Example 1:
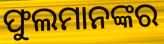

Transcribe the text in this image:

ଫୁଲମାନଙ୍କର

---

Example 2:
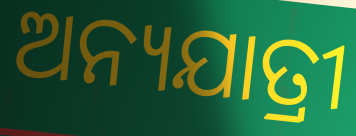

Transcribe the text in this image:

ଅନ୍ଯଯାତ୍ରୀ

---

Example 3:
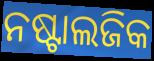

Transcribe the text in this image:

ନଷ୍ଟାଲଜିକ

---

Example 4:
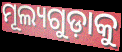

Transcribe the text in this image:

ମୂଲ୍ୟଗୁଡ଼ାକୁ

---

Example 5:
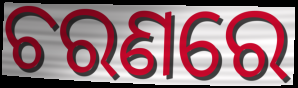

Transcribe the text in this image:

ଚରଣରେ